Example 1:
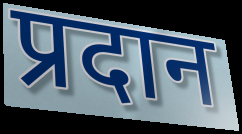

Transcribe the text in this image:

प्रदान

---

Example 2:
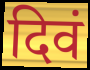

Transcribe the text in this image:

दिवं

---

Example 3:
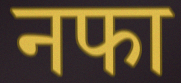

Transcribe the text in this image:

नफा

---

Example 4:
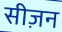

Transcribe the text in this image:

सीज़न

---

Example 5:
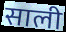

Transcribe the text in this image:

साली